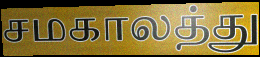
சமகாலத்து